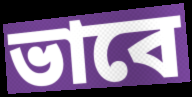
ভাবে